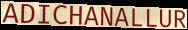
ADICHANALLUR